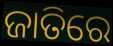
ଜାତିରେ